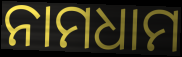
ନାମଧାମ